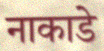
नाकाडे